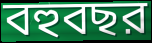
বহুবছর